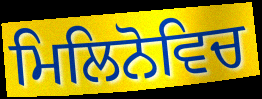
ਮਿਲਿਨੋਵਿਚ